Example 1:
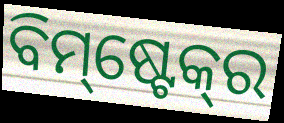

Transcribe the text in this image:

ବିମ୍‌ଷ୍ଟେକ୍‌ର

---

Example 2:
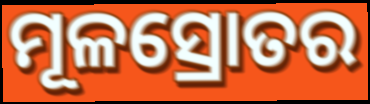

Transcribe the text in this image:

ମୂଳସ୍ରୋତର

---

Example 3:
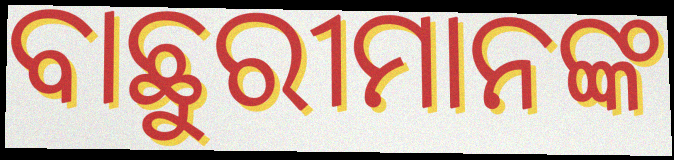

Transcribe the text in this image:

ବାଛୁରୀମାନଙ୍କ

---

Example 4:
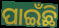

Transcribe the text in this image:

ପାଇଁଛି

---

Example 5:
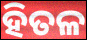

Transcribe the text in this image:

ହିତଳ